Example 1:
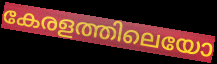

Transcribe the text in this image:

കേരളത്തിലെയോ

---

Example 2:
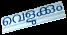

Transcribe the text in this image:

വെളുക്കും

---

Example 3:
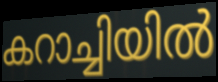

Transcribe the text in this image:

കറാച്ചിയിൽ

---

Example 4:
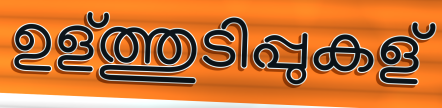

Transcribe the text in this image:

ഉള്ത്തുടിപ്പുകള്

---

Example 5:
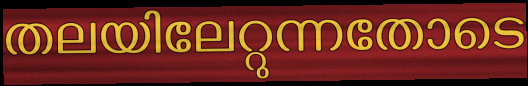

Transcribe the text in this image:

തലയിലേറ്റുന്നതോടെ